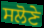
ਸਲੋਣੇ